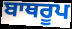
ਬਾਥਰੂਪ